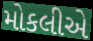
મોકલીએ